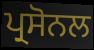
ਪ੍ਰਸੋਨਲ